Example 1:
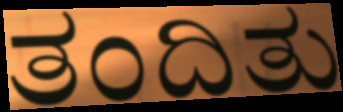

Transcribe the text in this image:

ತಂದಿತು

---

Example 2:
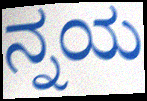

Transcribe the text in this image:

ನ್ನಯ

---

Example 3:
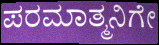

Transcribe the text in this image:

ಪರಮಾತ್ಮನಿಗೇ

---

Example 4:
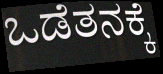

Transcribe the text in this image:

ಒಡೆತನಕ್ಕೆ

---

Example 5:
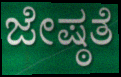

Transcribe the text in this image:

ಜೇಷ್ಠತೆ